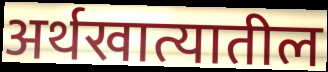
अर्थखात्यातील